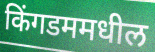
किंगडममधील